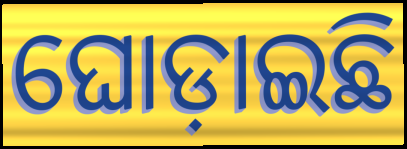
ଘୋଡ଼ାଇଛି